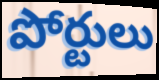
పోర్టులు